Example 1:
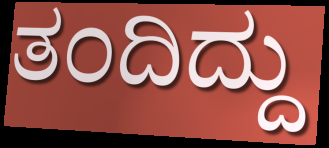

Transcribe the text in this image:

ತಂದಿದ್ದು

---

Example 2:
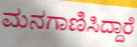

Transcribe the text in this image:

ಮನಗಾಣಿಸಿದ್ದಾರೆ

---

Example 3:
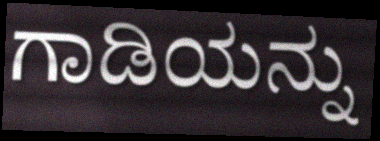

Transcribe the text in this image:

ಗಾಡಿಯನ್ನು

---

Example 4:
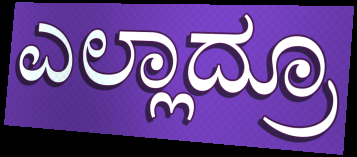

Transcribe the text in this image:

ಎಲ್ಲಾದ್ರೂ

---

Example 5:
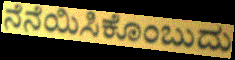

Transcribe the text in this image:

ನೆನೆಯಿಸಿಕೊಂಬುದು